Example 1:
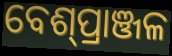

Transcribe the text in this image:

ବେଶ୍‌ପ୍ରାଞ୍ଜଳ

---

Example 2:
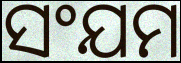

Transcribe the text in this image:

ସଂଯମ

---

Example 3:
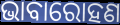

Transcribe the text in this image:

ଭାବାରୋହଣ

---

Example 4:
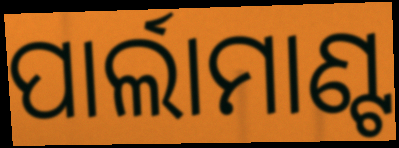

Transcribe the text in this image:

ପାର୍ଲାମାଣ୍ଟ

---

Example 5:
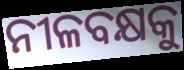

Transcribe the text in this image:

ନୀଳବକ୍ଷକୁ